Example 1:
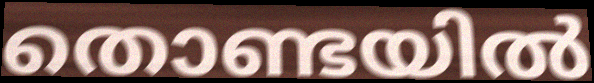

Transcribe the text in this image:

തൊണ്ടയിൽ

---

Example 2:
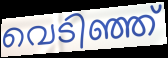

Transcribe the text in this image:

വെടിഞ്ഞ്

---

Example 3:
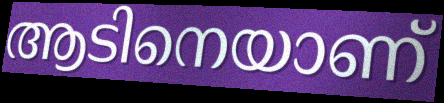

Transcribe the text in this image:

ആടിനെയാണ്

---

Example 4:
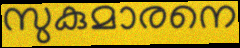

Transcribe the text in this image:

സുകുമാരനെ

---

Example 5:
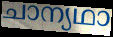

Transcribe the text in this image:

ചാന്യഥാ